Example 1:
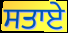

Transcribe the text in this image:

ਸਤਾਏ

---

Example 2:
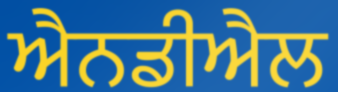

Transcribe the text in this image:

ਐਨਡੀਐਲ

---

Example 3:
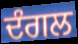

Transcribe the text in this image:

ਦੰਗਲ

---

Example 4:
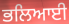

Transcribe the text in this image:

ਭਲਿਆਈ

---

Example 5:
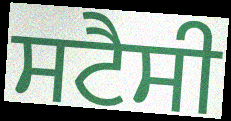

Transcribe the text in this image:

ਸਟੈਸੀ